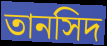
তানসিদ